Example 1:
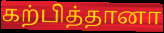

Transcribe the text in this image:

கற்பித்தானா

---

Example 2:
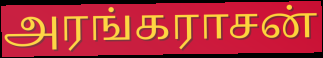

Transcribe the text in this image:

அரங்கராசன்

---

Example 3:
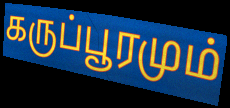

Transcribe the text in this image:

கருப்பூரமும்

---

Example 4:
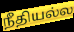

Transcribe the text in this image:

நீதியல்ல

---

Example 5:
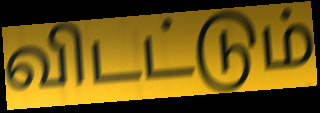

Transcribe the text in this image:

விடட்டும்